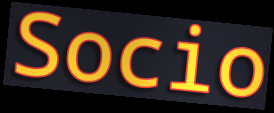
Socio